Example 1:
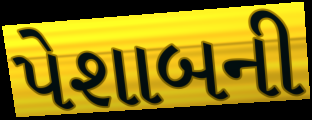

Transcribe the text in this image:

પેશાબની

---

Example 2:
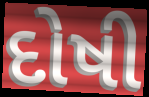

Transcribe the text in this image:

દોષી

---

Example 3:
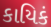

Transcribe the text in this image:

કાયિકં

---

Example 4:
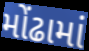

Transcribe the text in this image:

મોંઢામાં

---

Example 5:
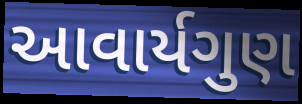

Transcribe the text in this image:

આવાર્યગુણ